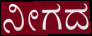
ನೀಗದ